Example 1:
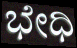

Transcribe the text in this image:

ಭೇಧಿ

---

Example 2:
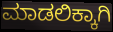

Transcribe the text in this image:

ಮಾಡಲಿಕ್ಕಾಗಿ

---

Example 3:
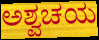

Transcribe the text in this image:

ಅಶ್ವಚಯ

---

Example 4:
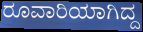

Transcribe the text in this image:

ರೂವಾರಿಯಾಗಿದ್ದ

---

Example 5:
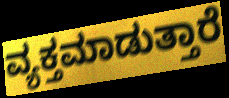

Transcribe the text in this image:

ವ್ಯಕ್ತಮಾಡುತ್ತಾರೆ